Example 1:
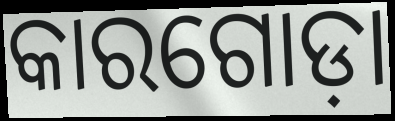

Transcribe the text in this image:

କାରଗୋଡ଼ା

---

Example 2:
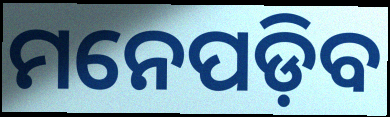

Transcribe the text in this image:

ମନେପଡ଼ିବ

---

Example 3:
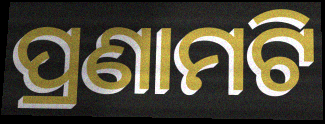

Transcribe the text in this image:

ପ୍ରଣାମଟି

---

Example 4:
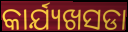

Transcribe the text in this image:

କାର୍ଯ୍ୟଖସଡା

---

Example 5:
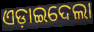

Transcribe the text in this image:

ଏଡ଼ାଇଦେଲା